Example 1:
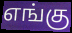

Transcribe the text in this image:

எங்கு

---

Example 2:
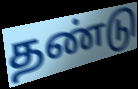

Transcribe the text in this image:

தண்டு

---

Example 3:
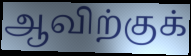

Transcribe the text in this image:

ஆவிற்குக்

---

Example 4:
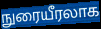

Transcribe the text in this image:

நுரையீரலாக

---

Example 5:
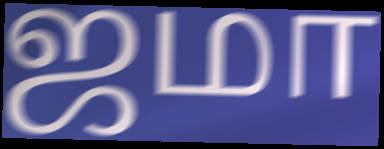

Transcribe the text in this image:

ஜமா